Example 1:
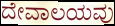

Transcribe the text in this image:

ದೇವಾಲಯವು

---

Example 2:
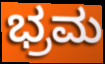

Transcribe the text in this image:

ಭ್ರಮ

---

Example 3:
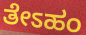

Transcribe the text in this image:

ತೇಽಹಂ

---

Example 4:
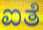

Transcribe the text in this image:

ಐತೆ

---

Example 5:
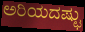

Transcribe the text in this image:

ಅರಿಯದಷ್ಟು